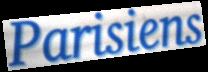
Parisiens